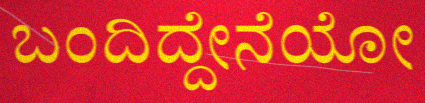
ಬಂದಿದ್ದೇನೆಯೋ